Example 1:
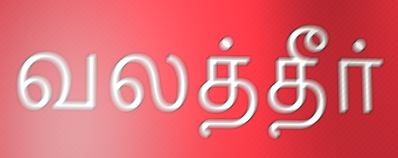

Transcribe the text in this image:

வலத்தீர்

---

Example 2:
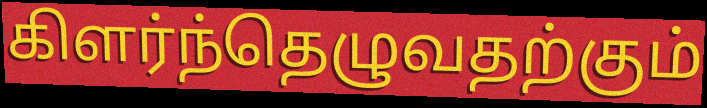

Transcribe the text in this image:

கிளர்ந்தெழுவதற்கும்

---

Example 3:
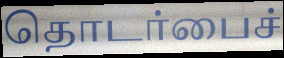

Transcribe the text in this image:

தொடர்பைச்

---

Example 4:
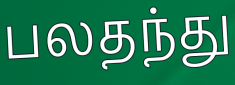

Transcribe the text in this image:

பலதந்து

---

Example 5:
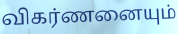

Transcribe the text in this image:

விகர்ணனையும்